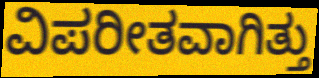
ವಿಪರೀತವಾಗಿತ್ತು